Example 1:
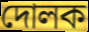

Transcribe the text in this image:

দোলক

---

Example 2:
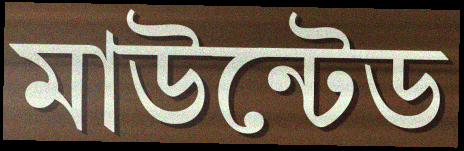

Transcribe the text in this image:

মাউন্টেড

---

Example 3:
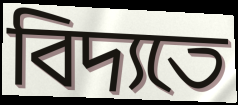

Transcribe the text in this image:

বিদ্যতে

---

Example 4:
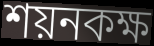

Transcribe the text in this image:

শয়নকক্ষ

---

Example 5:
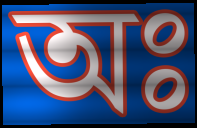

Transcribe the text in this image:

অঃ